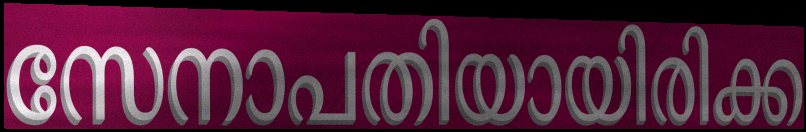
സേനാപതിയായിരിക്ക